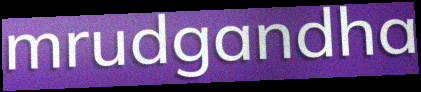
mrudgandha